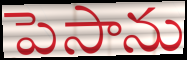
పెసాను